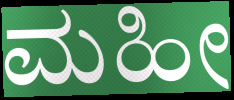
ಮಹೀ